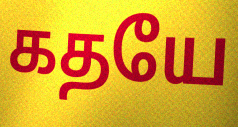
கதயே